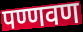
पण्णवण